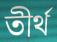
তীর্থ